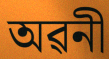
অৱনী